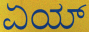
ಏಯ್